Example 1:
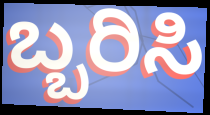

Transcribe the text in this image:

ಬ್ಬರಿಸಿ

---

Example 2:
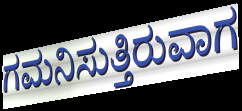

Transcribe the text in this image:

ಗಮನಿಸುತ್ತಿರುವಾಗ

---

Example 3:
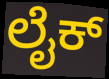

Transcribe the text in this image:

ಲೈಕ್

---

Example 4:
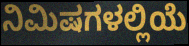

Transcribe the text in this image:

ನಿಮಿಷಗಳಲ್ಲಿಯೆ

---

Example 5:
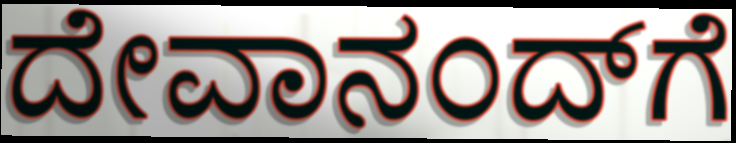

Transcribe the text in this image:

ದೇವಾನಂದ್‌ಗೆ